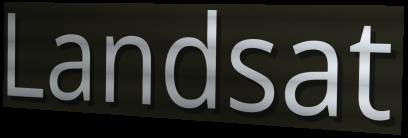
Landsat